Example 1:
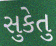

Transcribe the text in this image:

સુકેતુ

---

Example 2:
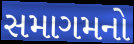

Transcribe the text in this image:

સમાગમનો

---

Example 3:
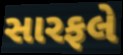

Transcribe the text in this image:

સારફલે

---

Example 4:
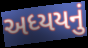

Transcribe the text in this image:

અધ્યયનું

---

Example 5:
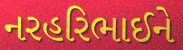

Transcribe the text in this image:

નરહરિભાઈને